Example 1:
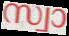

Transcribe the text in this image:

സ്വാ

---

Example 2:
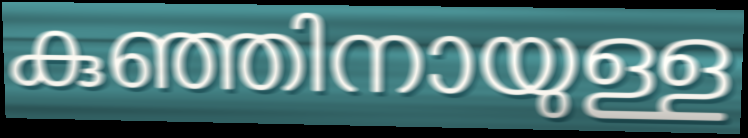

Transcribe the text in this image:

കുഞ്ഞിനായുള്ള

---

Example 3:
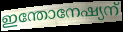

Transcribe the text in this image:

ഇന്തോനേഷ്യന്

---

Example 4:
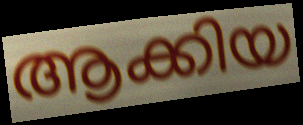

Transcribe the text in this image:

ആക്കിയ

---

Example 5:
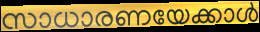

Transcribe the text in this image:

സാധാരണയേക്കാൾ